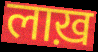
लाख़